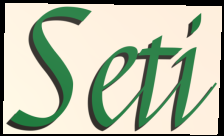
Seti